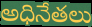
అధినేతలు